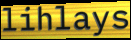
lihlays